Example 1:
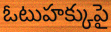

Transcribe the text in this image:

ఓటుహక్కుపై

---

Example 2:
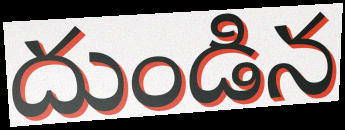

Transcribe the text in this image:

దుండిన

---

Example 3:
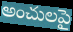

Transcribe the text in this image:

అంచులపై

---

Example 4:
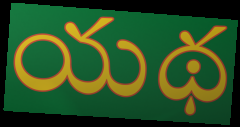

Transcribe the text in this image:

యథ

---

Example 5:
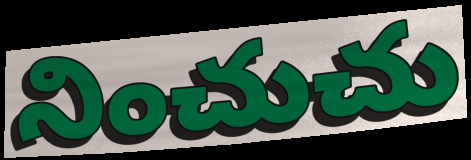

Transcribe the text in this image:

నించుచు